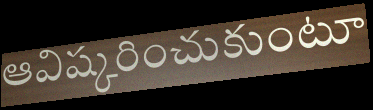
ఆవిష్కరించుకుంటూ